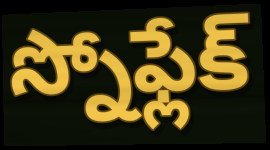
స్నోఫ్లేక్